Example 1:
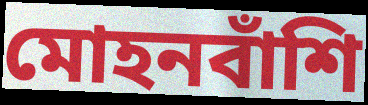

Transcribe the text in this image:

মোহনবাঁশি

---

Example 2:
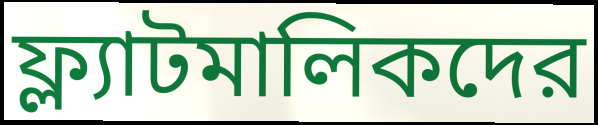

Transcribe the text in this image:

ফ্ল্যাটমালিকদের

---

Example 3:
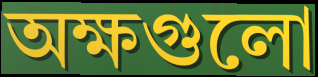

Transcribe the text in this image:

অক্ষগুলো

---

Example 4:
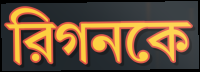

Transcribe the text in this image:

রিগনকে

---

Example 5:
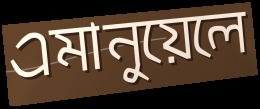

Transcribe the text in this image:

এমানুয়েলে